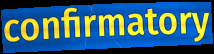
confirmatory